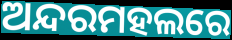
ଅନ୍ଦରମହଲରେ